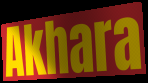
Akhara